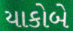
યાકોબે